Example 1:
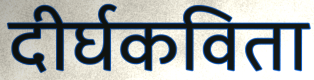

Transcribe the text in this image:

दीर्घकविता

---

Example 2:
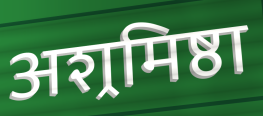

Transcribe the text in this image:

अश्रमिष्ठा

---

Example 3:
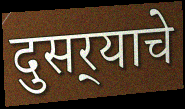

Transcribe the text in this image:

दुसर्याचे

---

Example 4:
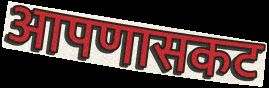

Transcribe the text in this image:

आपणासकट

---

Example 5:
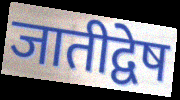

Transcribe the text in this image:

जातीद्वेष